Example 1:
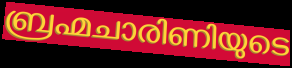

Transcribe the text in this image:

ബ്രഹ്മചാരിണിയുടെ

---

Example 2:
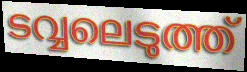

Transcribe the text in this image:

ടവ്വലെടുത്ത്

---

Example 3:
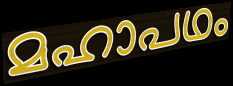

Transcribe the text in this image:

മഹാപഥം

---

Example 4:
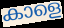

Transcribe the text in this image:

കാളെ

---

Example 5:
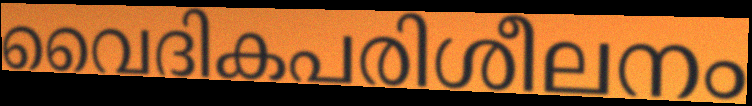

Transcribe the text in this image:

വൈദികപരിശീലനം